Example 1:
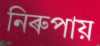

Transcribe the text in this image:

নিৰুপায়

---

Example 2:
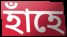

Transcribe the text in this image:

হাঁহে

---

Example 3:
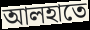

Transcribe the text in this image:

আলহাতে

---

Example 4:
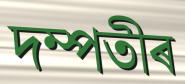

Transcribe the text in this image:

দম্পতীৰ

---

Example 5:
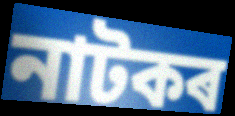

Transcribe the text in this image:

নাটকৰ